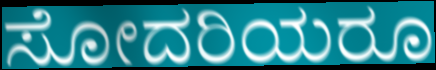
ಸೋದರಿಯರೂ